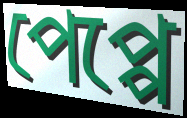
পেপ্পে